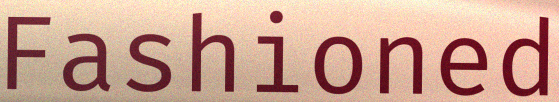
Fashioned